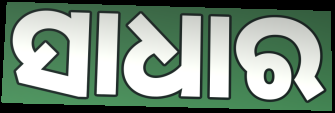
ସାଧାର